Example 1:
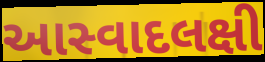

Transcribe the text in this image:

આસ્વાદલક્ષી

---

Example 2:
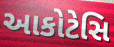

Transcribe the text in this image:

આકોટેસિ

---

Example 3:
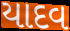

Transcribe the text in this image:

યાદવ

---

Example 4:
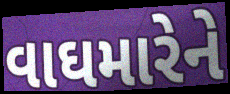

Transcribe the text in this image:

વાઘમારેને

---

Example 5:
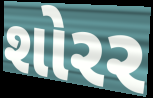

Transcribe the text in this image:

શોરર